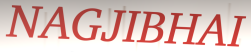
NAGJIBHAI